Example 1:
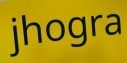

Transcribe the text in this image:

jhogra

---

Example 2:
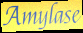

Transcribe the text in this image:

Amylase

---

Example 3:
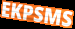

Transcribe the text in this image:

EKPSMS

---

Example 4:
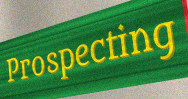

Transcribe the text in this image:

Prospecting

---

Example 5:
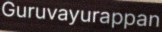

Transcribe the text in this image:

Guruvayurappan